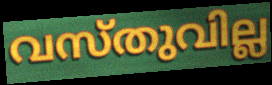
വസ്തുവില്ല